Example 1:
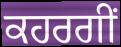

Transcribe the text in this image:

ਕਹਰਗੀਂ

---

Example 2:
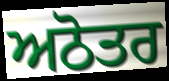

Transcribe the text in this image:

ਅਠੋਤਰ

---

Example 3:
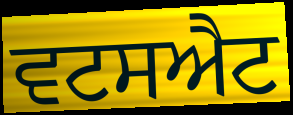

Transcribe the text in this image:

ਵਟਸਐਟ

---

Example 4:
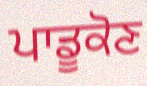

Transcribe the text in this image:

ਪਾਡੂਕੋਣ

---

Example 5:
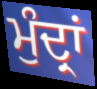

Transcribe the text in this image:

ਮੁੰਦ੍ਰਾਂ